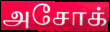
அசோக்